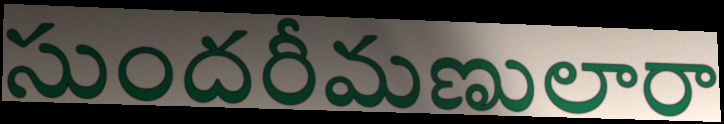
సుందరీమణులారా